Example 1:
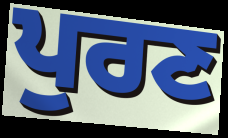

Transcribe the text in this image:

ਪੁਰਣ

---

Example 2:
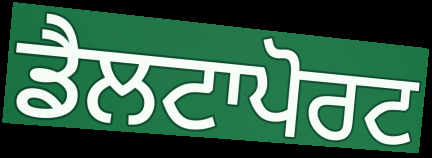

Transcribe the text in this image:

ਡੈਲਟਾਪੋਰਟ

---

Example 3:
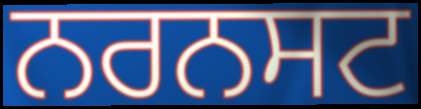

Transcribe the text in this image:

ਨਰਨਸਟ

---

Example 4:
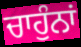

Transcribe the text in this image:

ਚਾਹੁੰਨਾਂ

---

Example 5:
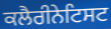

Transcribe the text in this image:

ਕਲੈਰੀਨੇਟਿਸਟ